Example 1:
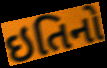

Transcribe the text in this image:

ઇતિનો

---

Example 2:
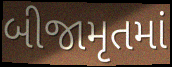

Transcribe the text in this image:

બીજામૃતમાં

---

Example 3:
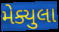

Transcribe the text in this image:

મેક્યુલા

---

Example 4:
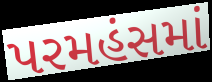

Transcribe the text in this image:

પરમહંસમાં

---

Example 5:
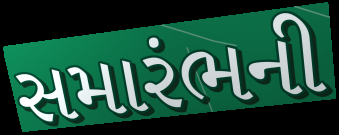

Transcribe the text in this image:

સમારંભની